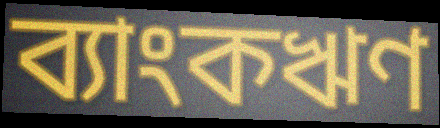
ব্যাংকঋণ